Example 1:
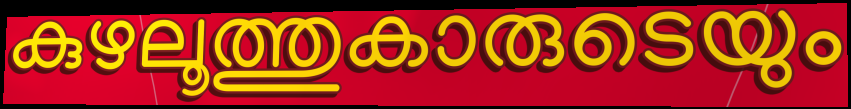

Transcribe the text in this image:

കുഴലൂത്തുകാരുടെയും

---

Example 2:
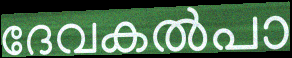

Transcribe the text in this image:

ദേവകൽപാ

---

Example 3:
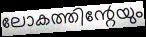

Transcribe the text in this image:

ലോകത്തിന്റേയും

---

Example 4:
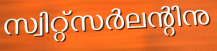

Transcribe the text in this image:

സ്വിറ്റ്സർലന്റിനു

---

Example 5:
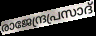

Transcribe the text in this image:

രാജേന്ദ്രപ്രസാദ്